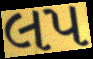
લપ